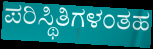
ಪರಿಸ್ಥಿತಿಗಳಂತಹ